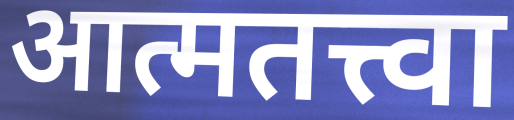
आत्मतत्त्वा